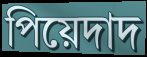
পিয়েদাদ